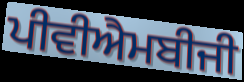
ਪੀਵੀਐਮਬੀਜੀ